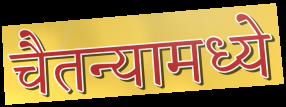
चैतन्यामध्ये